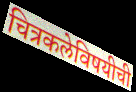
चित्रकलेविषयीची